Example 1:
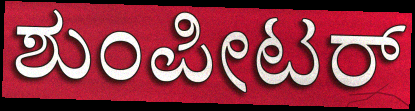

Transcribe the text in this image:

ಶುಂಪೀಟರ್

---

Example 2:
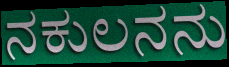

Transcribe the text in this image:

ನಕುಲನನು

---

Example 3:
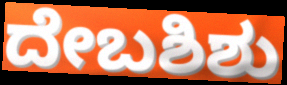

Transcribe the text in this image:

ದೇಬಶಿಶು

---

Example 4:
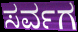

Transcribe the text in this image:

ಸರ್ವಗ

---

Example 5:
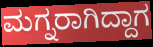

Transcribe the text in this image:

ಮಗ್ನರಾಗಿದ್ದಾಗ